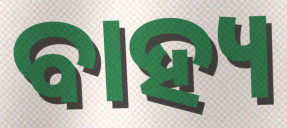
ବାହ୍ୟ